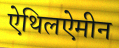
ऐथिलऐमीन